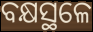
ବକ୍ଷସ୍ଥଳେ